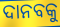
ଦାନବକୁ